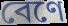
বেণে